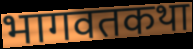
भागवतकथा